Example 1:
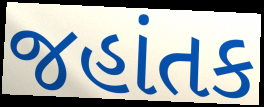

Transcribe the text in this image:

જહાંતક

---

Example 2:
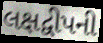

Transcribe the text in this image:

લક્ષદ્વીપની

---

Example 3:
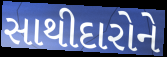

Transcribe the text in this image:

સાથીદારોને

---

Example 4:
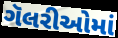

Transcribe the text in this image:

ગૅલરીઓમાં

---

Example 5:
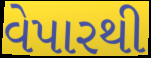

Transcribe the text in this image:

વેપારથી